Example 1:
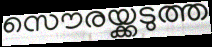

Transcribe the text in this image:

സൌരയ്ക്കടുത്ത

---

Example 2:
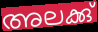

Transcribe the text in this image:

അലക്കു്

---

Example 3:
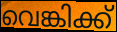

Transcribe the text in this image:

വെങ്കിക്ക്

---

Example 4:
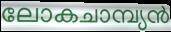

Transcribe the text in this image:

ലോകചാമ്പ്യൻ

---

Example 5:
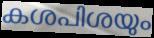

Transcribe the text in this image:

കശപിശയും